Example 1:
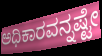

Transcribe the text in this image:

ಅಧಿಕಾರವನ್ನಷ್ಟೇ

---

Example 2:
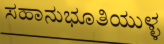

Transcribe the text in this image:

ಸಹಾನುಭೂತಿಯುಳ್ಳ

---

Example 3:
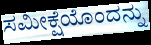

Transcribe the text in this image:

ಸಮೀಕ್ಷೆಯೊಂದನ್ನು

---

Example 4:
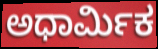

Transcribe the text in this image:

ಅಧಾರ್ಮಿಕ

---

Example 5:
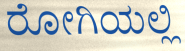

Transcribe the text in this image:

ರೋಗಿಯಲ್ಲಿ